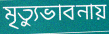
মৃত্যুভাবনায়